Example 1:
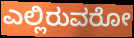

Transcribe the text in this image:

ಎಲ್ಲಿರುವರೋ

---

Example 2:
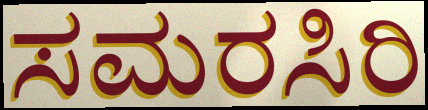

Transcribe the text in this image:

ಸಮರಸಿರಿ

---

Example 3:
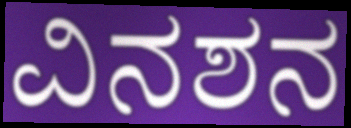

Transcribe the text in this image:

ವಿನಶನ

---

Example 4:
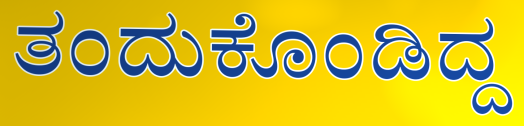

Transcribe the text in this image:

ತಂದುಕೊಂಡಿದ್ದ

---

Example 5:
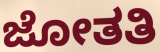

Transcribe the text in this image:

ಜೋತತಿ